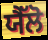
ਯੈੱਲੋ